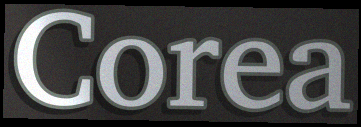
Corea